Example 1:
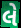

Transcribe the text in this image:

લે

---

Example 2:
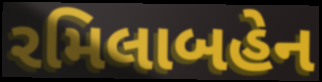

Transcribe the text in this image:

રમિલાબહેન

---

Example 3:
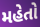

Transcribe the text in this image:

મહેતો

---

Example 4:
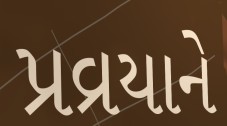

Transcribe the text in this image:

પ્રવ્રયાને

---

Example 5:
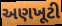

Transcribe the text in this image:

અણખૂટી